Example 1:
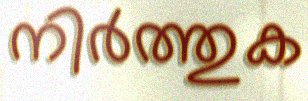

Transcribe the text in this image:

നിർത്തുക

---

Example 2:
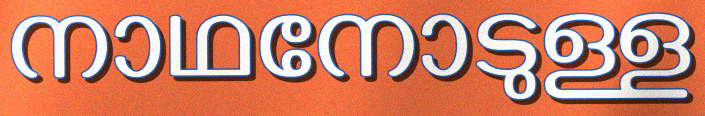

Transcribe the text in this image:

നാഥനോടുള്ള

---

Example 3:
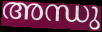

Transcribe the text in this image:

അന്ധു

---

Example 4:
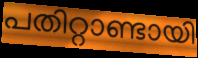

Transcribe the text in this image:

പതിറ്റാണ്ടായി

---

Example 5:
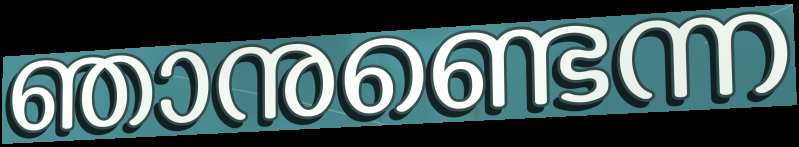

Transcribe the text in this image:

ഞാനുണ്ടെന്ന